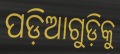
ପଡ଼ିଆଗୁଡ଼ିକୁ